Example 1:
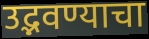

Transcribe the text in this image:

उद्भवण्याचा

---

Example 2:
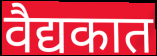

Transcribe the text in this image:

वैद्यकात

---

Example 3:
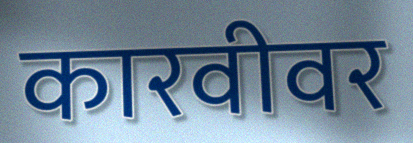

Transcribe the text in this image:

कारवीवर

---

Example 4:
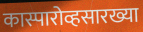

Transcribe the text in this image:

कास्पारोव्हसारख्या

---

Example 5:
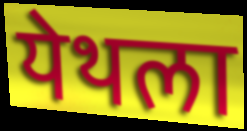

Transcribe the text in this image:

येथला